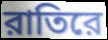
রাতিরে